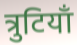
त्रुटियाँ